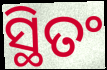
ସ୍ଥିତଂ